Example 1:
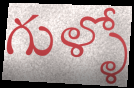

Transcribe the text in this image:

గుళ్ళో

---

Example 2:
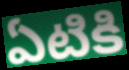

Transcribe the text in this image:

ఏటికి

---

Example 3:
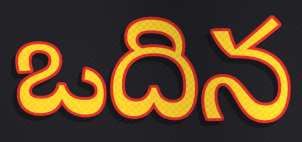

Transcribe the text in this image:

ఒదిన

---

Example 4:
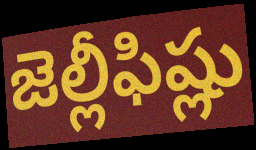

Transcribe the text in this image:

జెల్లీఫిష్లు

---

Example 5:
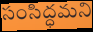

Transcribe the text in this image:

సంసిద్ధమని